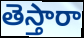
తెస్తారా